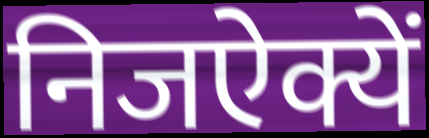
निजऐक्यें